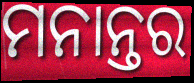
ମନାନ୍ତର